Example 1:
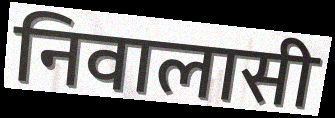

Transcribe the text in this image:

निवालासी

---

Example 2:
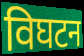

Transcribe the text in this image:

विघटन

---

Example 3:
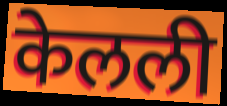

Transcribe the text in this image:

केलली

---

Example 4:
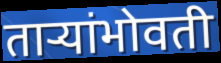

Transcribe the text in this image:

ताऱ्यांभोवती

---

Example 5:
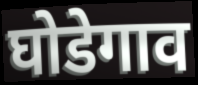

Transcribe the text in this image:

घोडेगाव